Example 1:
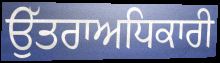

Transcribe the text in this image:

ਉੱਤਰਾਅਧਿਕਾਰੀ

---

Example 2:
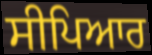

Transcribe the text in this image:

ਸੀਪਿਆਰ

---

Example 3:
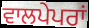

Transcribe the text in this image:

ਵਾਲਪੇਪਰਾਂ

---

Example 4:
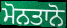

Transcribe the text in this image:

ਮੋਨਤਾਨੋ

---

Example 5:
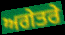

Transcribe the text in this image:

ਅਗੇਤਰੇ